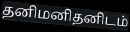
தனிமனிதனிடம்